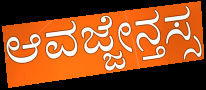
ಆವಜ್ಜೇನ್ತಸ್ಸ